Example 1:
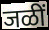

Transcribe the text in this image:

जळीं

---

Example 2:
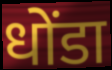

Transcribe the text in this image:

धोंडा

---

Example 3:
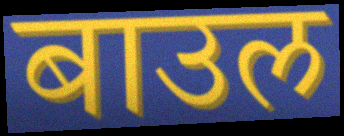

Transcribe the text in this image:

बाउल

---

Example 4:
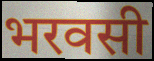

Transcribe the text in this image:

भरवसी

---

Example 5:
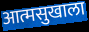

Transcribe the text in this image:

आत्मसुखाला